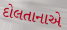
દોલતાનાએ